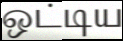
ஒட்டிய